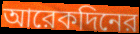
আরেকদিনের